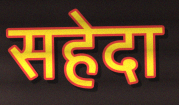
सहेदा